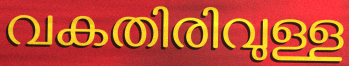
വകതിരിവുള്ള